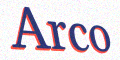
Arco